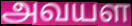
அவயள